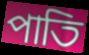
পাতি